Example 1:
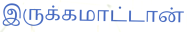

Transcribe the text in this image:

இருக்கமாட்டான்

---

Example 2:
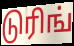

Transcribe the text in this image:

டுரிங்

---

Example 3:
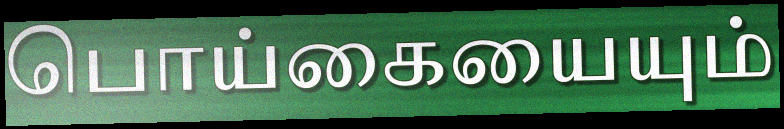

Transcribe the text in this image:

பொய்கையையும்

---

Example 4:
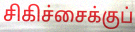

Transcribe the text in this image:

சிகிச்சைக்குப்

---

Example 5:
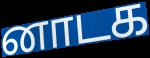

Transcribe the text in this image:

னாடக